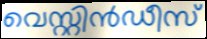
വെസ്റ്റിൻഡീസ്